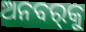
ଅନବର୍‌କୁ